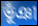
ভূঁঞা